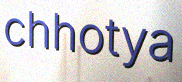
chhotya